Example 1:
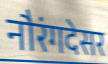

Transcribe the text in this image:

नौरंगदेसर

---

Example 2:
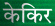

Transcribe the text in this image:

केकिर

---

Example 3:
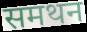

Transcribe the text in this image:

समथन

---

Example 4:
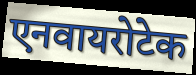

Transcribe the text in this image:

एनवायरोटेक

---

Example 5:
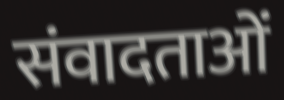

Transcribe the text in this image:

संवादताओं